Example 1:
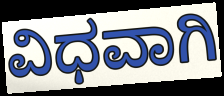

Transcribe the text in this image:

ವಿಧವಾಗಿ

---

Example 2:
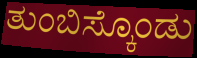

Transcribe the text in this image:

ತುಂಬಿಸ್ಕೊಂಡು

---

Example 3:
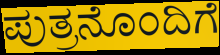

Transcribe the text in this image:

ಪುತ್ರನೊಂದಿಗೆ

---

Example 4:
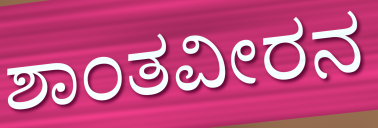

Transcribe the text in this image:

ಶಾಂತವೀರನ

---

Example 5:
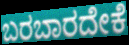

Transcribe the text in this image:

ಬರಬಾರದೇಕೆ